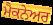
ਮੈਕਨੇਅਰ